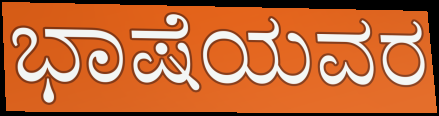
ಭಾಷೆಯವರ